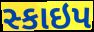
સ્કાઇપ